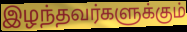
இழந்தவர்களுக்கும்